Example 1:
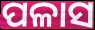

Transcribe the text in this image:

ପଳାସ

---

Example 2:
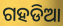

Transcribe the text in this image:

ଗହଡିଆ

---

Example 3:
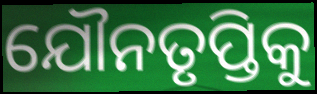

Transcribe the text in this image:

ଯୌନତୃପ୍ତିକୁ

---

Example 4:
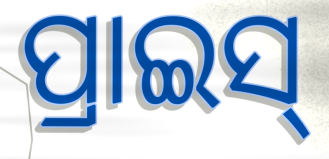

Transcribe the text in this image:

ପ୍ରାଇସ୍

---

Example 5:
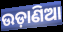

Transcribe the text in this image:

ଉଡ଼ାଣିଆ